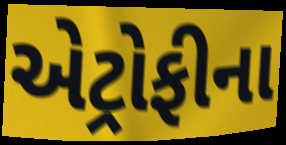
એટ્રોફીના